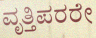
ವೃತ್ತಿಪರರೇ